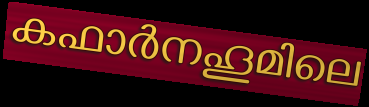
കഫാർനഹൂമിലെ